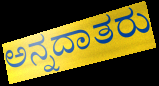
ಅನ್ನದಾತರು